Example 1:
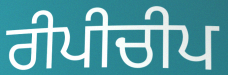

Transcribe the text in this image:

ਰੀਪੀਚੀਪ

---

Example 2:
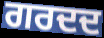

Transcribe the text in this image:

ਗਰਦਦ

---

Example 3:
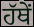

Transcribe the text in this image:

ਹੱਥੇਂ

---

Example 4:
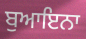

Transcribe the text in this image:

ਬੁਆਇਨਾ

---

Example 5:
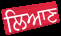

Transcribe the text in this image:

ਲਿਆਣ